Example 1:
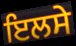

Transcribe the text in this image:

ਇਲਸੇ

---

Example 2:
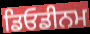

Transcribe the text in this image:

ਡਿਓਡੀਨਮ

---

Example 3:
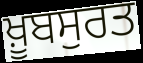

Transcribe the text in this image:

ਖ਼ੂਬਸੁਰਤ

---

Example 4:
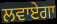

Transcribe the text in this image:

ਲਵਾਏਗਾ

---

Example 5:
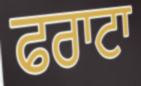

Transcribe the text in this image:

ਫਰਾਟਾ